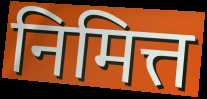
निमित्त